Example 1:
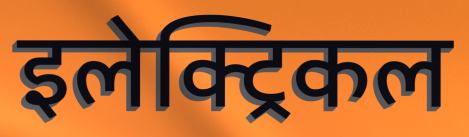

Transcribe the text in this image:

इलेक्ट्रिकल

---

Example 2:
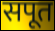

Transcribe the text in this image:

सपूत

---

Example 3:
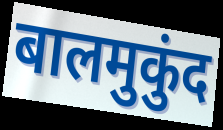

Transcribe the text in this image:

बालमुकुंद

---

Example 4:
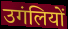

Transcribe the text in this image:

उगंलियों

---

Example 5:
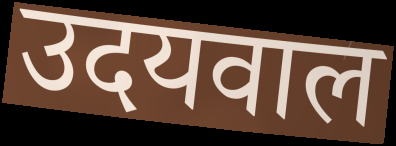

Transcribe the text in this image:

उदयवाल